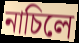
নাচিলে